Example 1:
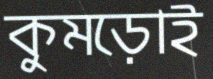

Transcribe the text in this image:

কুমড়োই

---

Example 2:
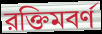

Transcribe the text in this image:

রক্তিমবর্ণ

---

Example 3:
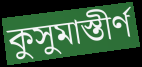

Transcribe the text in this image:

কুসুমাস্তীর্ণ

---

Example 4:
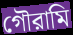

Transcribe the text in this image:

গৌরামি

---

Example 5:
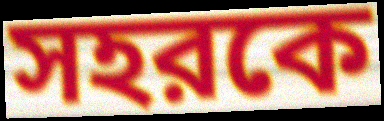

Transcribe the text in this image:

সহরকে